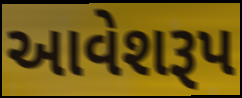
આવેશરૂપ